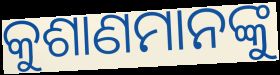
କୁଶାଣମାନଙ୍କୁ